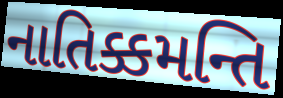
નાતિક્કમન્તિ